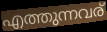
എത്തുന്നവര്